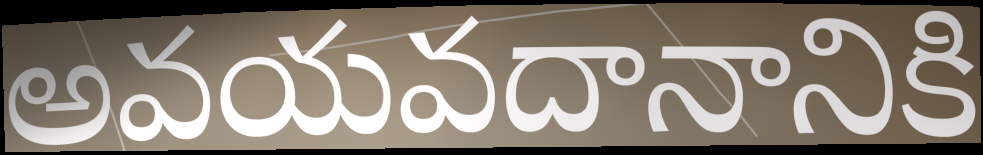
అవయవదానానికి